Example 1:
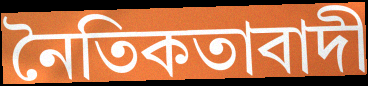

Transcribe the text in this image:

নৈতিকতাবাদী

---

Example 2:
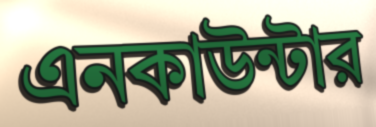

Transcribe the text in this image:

এনকাউন্টার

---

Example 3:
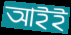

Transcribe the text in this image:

আইই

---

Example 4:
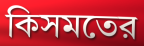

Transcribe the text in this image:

কিসমতের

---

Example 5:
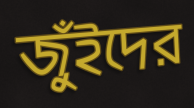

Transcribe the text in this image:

জুঁইদের